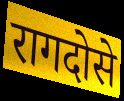
रागदोसे